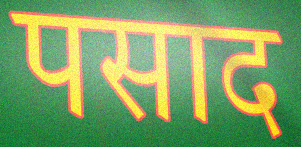
पसाद